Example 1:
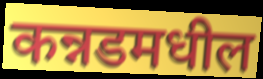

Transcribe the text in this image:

कन्नडमधील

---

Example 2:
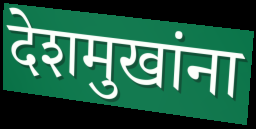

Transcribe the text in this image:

देशमुखांना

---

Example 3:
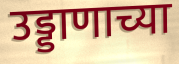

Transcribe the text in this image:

उड्डाणाच्या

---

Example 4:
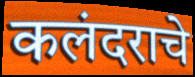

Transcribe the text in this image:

कलंदराचे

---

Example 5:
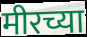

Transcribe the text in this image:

मीरच्या